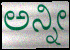
ಅನ್ನೀ